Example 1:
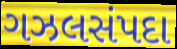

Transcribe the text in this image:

ગઝલસંપદા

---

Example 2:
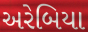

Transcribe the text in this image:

અરેબિયા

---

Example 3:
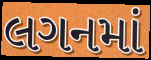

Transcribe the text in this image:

લગનમાં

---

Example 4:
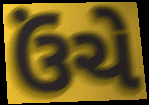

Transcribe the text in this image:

ઉંચે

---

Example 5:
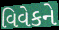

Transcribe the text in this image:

વિવેકને